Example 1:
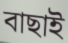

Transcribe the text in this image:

বাছাই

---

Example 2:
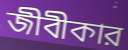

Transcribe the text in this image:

জীবীকার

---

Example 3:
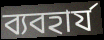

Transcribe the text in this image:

ব্যবহার্য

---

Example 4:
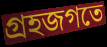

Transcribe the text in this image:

গ্রহজগতে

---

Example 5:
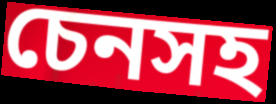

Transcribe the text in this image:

চেনসহ